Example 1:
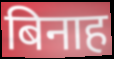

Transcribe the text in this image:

बिनाह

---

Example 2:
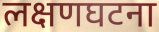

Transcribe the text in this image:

लक्षणघटना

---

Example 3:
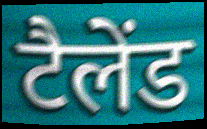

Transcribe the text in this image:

टैलेंड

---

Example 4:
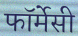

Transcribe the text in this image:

फॉर्मेसी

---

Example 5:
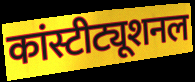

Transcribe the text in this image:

कांस्टीट्यूशनल